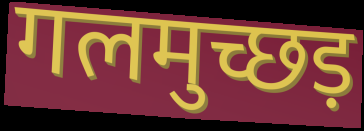
गलमुच्छड़